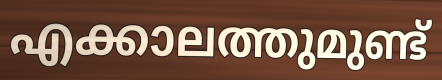
എക്കാലത്തുമുണ്ട്